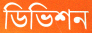
ডিভিশন